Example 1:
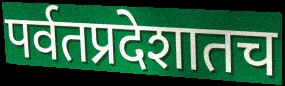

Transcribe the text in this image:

पर्वतप्रदेशातच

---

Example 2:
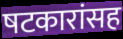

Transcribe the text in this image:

षटकारांसह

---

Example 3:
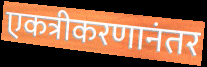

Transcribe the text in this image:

एकत्रीकरणानंतर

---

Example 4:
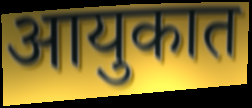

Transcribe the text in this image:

आयुकात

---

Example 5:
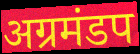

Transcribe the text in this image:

अग्रमंडप